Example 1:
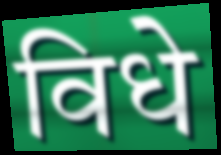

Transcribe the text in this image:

विधे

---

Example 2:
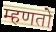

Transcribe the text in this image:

म्हणतो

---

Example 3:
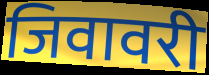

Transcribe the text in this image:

जिवावरी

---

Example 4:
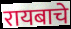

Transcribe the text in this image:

रायबाचे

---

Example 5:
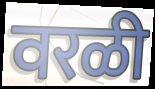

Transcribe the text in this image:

वरळी